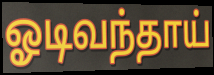
ஓடிவந்தாய்